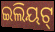
ଇଲିୟଟ୍